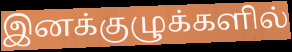
இனக்குழுக்களில்